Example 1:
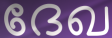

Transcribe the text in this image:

ദേഖ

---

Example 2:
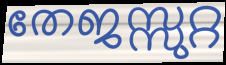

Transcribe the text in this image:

തേജസ്സുറ്റ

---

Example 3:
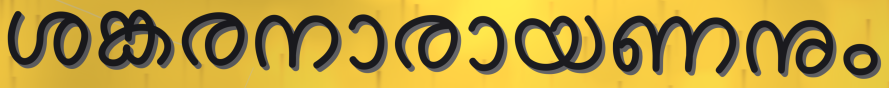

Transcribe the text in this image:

ശങ്കരനാരായണനും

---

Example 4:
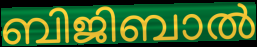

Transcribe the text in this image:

ബിജിബാൽ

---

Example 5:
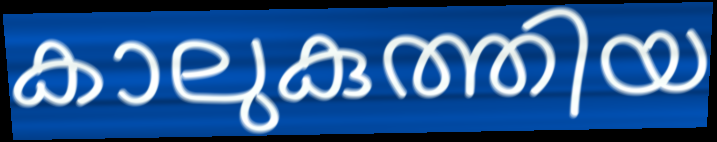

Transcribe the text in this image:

കാലുകുത്തിയ